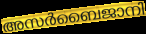
അസർബൈജാനി